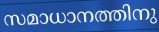
സമാധാനത്തിനു